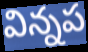
విన్నప